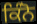
ਕਿੰਨੋ